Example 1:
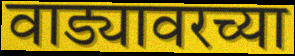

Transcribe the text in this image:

वाड्यावरच्या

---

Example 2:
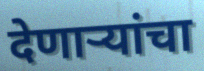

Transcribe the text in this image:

देणाऱ्यांचा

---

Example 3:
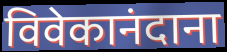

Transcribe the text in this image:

विवेकानंदाना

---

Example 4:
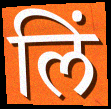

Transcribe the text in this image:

लिं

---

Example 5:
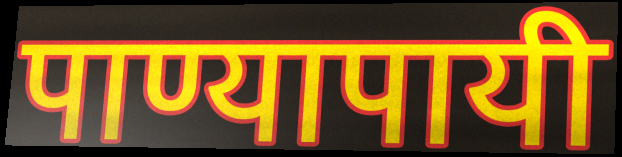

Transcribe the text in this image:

पाण्यापायी